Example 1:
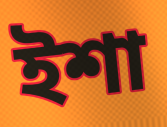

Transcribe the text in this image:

ইশা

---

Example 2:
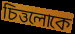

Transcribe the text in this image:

চিত্তলোকে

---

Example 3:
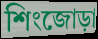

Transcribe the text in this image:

শিংজোড়া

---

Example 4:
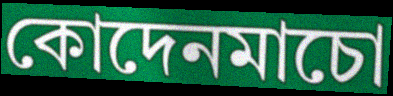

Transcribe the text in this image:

কোদেনমাচো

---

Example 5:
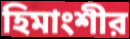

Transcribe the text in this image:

হিমাংশীর